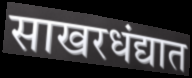
साखरधंद्यात